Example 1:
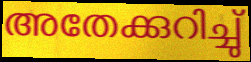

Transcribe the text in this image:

അതേക്കുറിച്ചു്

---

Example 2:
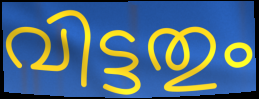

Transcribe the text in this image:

വിട്ടതും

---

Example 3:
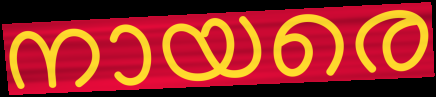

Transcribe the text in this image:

നായരെ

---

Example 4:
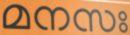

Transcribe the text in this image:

മനസഃ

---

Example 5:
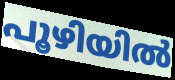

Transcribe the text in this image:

പൂഴിയിൽ